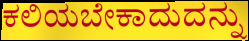
ಕಲಿಯಬೇಕಾದುದನ್ನು